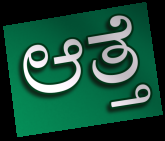
ಆತ್ತೆ